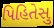
પિહિતેસુ